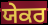
ਯੇਕਰ